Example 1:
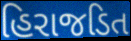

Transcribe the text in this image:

હિરાજડિત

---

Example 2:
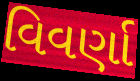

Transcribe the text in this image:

વિવર્ણા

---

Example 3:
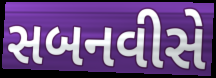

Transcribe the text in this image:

સબનવીસે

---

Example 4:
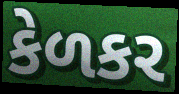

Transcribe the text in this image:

કેળકર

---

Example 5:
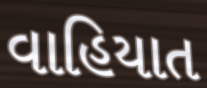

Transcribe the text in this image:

વાહિયાત